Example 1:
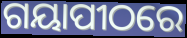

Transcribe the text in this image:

ଗୟାପୀଠରେ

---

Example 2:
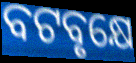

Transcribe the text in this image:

ବଟବୃକ୍ଷେ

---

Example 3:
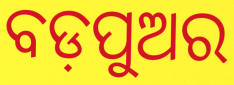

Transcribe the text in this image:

ବଡ଼ପୁଅର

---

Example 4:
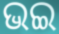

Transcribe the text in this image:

ଭଇ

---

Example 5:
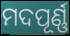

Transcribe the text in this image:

ମଦପୂର୍ଣ୍ଣ